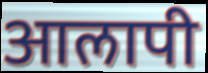
आलापी